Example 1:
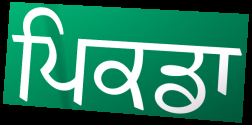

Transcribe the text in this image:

ਪਿਕਡਾ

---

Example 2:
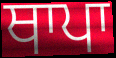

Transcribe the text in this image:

ਥਾਪਾ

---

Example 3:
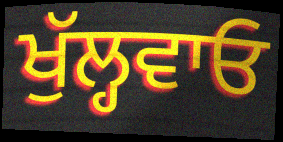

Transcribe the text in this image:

ਖੁੱਲ੍ਹਵਾਓ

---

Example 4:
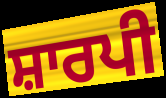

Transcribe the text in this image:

ਸ਼ਾਰਪੀ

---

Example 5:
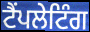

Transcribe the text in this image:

ਟੈਂਪਲੇਟਿੰਗ